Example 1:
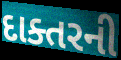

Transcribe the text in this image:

દાક્તરની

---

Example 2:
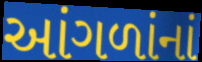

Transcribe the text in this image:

આંગળાંનાં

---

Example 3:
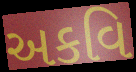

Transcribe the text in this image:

અકવિ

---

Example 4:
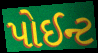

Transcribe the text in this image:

પોઈન્ટ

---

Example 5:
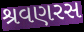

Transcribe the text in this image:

શ્રવણરસ